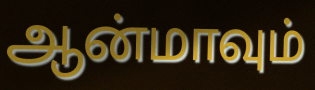
ஆன்மாவும்